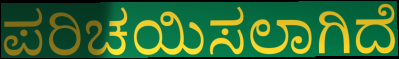
ಪರಿಚಯಿಸಲಾಗಿದೆ